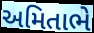
અમિતાભે